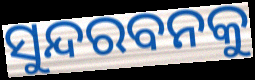
ସୁନ୍ଦରବନକୁ